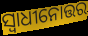
ସ୍ୱାଧୀନୋତ୍ତର